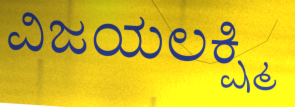
ವಿಜಯಲಕ್ಷ್ಮಿ